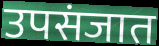
उपसंजात